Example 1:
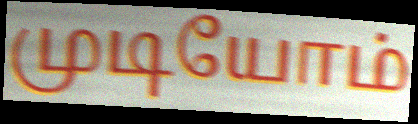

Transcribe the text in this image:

முடியோம்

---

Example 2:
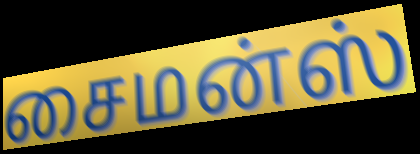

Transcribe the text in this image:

சைமன்ஸ்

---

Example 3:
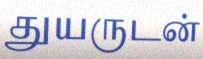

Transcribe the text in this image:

துயருடன்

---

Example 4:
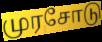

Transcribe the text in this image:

முரசோடு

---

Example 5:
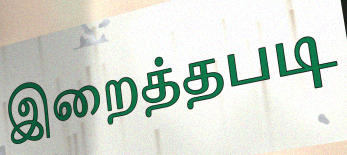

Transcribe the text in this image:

இறைத்தபடி